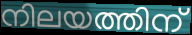
നിലയത്തിന്